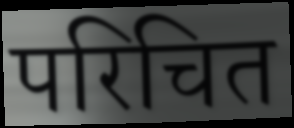
परिचित